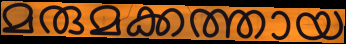
മരുമക്കത്തായ